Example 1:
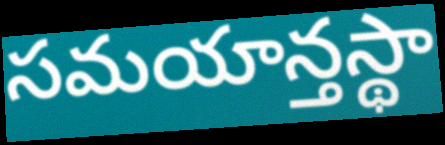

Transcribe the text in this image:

సమయాన్తస్థా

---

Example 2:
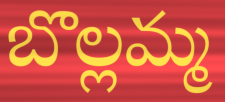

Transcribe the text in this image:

బొల్లమ్మ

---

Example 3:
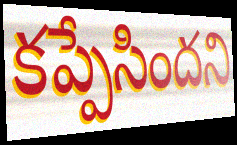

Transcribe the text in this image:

కప్పేసిందని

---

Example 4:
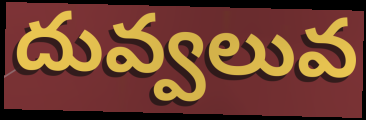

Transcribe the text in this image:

దువ్వలువ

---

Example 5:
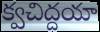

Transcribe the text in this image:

క్వచిద్దయా